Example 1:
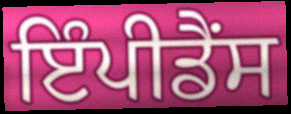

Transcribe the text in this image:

ਇੰਪੀਡੈਂਸ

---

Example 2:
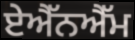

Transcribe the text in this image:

ਏਐੱਨਐੱਮ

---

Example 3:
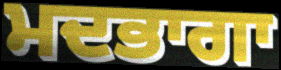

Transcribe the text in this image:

ਮਦਭਾਗਾ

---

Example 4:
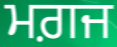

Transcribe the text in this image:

ਮਗ਼ਜ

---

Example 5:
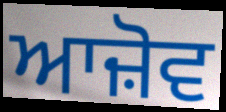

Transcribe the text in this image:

ਆਜ਼ੋਵ